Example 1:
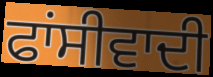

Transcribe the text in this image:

ਫਾਂਸੀਵਾਦੀ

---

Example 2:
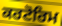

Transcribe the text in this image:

ਕਰਟੋਰਿਮ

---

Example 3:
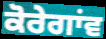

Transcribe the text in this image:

ਕੋਰੇਗਾਂਵ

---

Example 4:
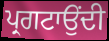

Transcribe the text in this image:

ਪ੍ਰਗਟਾਉਂਦੀ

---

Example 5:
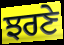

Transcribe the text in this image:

ਝਰਣੇ